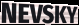
NEVSKY